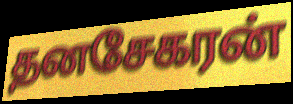
தனசேகரன்